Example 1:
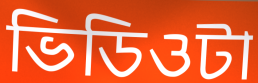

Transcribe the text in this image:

ভিডিওটা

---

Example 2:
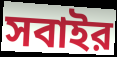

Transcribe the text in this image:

সবাইর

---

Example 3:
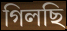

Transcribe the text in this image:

গিলছি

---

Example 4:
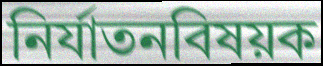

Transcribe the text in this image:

নির্যাতনবিষয়ক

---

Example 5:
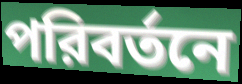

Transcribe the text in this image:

পরিবর্তনে